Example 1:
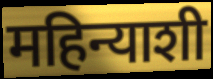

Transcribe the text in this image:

महिन्याशी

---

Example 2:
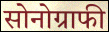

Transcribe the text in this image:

सोनोग्राफी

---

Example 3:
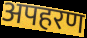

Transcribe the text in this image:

अपहरण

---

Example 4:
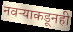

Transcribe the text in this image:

नवऱ्याकडूनही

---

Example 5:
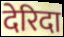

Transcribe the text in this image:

देरिदा